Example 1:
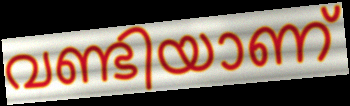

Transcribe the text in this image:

വണ്ടിയാണ്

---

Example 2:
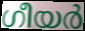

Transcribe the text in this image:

ഗീയർ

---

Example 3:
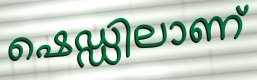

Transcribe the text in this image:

ഷെഡ്ഡിലാണ്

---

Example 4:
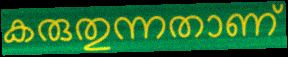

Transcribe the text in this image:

കരുതുന്നതാണ്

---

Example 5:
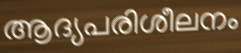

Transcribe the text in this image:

ആദ്യപരിശീലനം